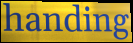
handing